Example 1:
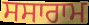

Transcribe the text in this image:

ਸਸਾਰਾਮ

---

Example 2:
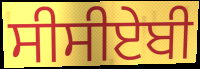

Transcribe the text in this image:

ਸੀਸੀਏਬੀ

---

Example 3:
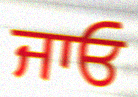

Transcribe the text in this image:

ਜਾਓ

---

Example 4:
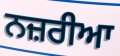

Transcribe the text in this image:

ਨਜ਼ਰੀਆ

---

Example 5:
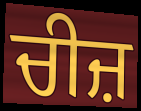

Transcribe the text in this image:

ਚੀਜ਼